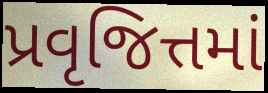
પ્રવૃજિત્તમાં